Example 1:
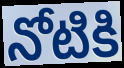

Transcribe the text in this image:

నోటికి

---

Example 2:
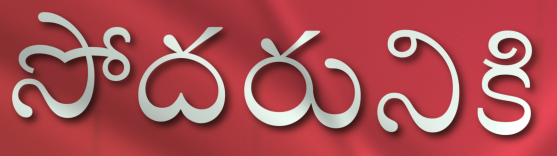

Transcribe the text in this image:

సోదరునికి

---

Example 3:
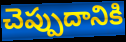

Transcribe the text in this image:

చెప్పుదానికి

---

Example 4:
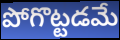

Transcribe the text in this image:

పోగొట్టడమే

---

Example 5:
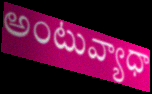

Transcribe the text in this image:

అంటువ్యాధా